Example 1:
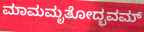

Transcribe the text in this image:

ಮಾಮಮೃತೋದ್ಭವಮ್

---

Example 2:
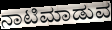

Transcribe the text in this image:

ನಾಟಿಮಾಡುವ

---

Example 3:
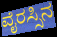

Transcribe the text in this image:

ವೈರಸ್ಸಿನ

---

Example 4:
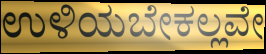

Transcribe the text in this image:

ಉಳಿಯಬೇಕಲ್ಲವೇ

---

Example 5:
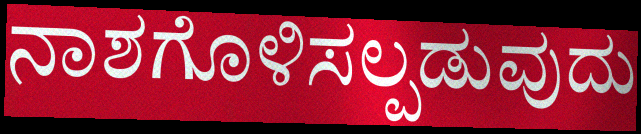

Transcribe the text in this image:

ನಾಶಗೊಳಿಸಲ್ಪಡುವುದು